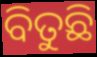
ବିତୁଛି